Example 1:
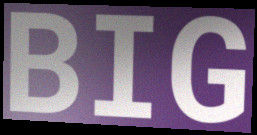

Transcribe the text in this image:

BIG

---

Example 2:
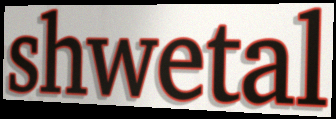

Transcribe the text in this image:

shwetal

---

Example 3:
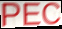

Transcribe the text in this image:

PEC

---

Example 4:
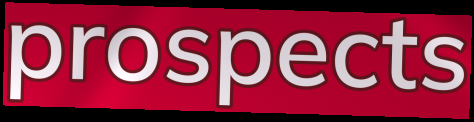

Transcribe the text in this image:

prospects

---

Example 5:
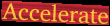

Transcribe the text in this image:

Accelerate